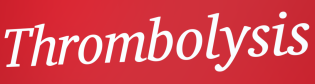
Thrombolysis